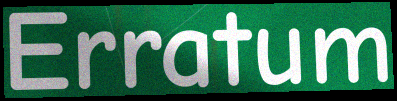
Erratum